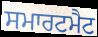
ਸਮਾਰਟਮੈਟ